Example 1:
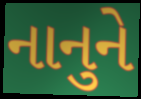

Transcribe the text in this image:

નાનુને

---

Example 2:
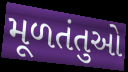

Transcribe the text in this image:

મૂળતંતુઓ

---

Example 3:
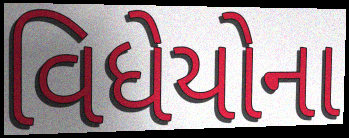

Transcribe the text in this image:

વિધેયોના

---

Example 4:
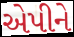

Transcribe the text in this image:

એપીને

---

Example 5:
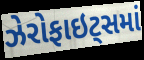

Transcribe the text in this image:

ઝેરોફાઇટ્સમાં